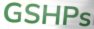
GSHPs